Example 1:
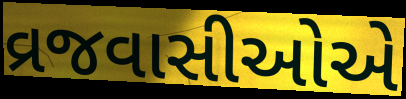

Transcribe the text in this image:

વ્રજવાસીઓએ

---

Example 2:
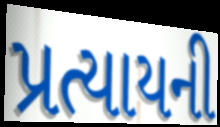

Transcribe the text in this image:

પ્રત્યાયની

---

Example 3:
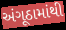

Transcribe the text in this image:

અંગૂઠામાંથી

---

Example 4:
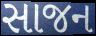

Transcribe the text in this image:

સાજન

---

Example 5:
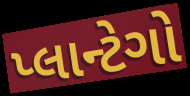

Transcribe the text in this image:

પ્લાન્ટેગો